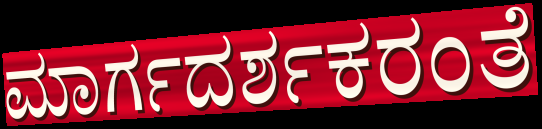
ಮಾರ್ಗದರ್ಶಕರಂತೆ